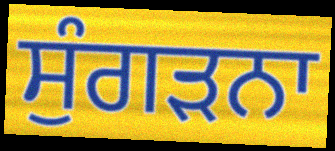
ਸੁੰਗੜਨਾ